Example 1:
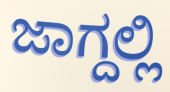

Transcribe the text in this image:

ಜಾಗ್ದಲ್ಲಿ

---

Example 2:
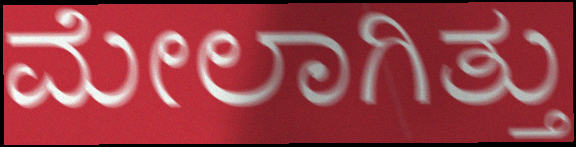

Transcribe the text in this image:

ಮೇಲಾಗಿತ್ತು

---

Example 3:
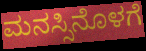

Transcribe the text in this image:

ಮನಸ್ಸಿನೊಳಗೆ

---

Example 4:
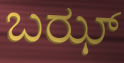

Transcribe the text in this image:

ಬಝ್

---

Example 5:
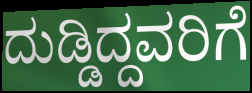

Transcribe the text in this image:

ದುಡ್ಡಿದ್ದವರಿಗೆ